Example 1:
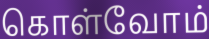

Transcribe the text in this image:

கொள்வோம்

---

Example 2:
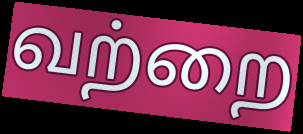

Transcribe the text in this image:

வற்றை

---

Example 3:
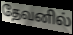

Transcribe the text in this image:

தேவனில்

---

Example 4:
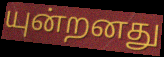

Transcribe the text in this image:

யுன்றனது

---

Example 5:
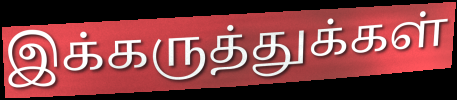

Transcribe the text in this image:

இக்கருத்துக்கள்